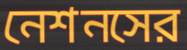
নেশনসের